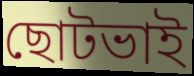
ছোটভাই